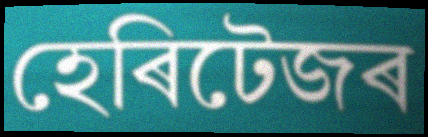
হেৰিটেজৰ